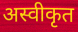
अस्वीकृत